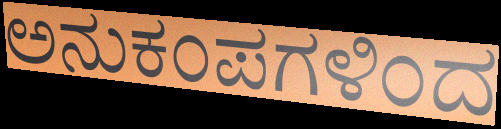
ಅನುಕಂಪಗಳಿಂದ